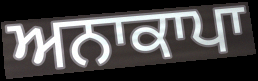
ਅਨਾਕਾਪਾ